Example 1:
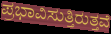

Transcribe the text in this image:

ಪ್ರಭಾವಿಸುತ್ತಿರುತ್ತವೆ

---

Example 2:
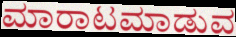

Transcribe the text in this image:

ಮಾರಾಟಮಾಡುವ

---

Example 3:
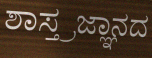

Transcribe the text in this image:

ಶಾಸ್ತ್ರಜ್ಞಾನದ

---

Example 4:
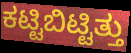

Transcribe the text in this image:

ಕಟ್ಟಿಬಿಟ್ಟಿತ್ತು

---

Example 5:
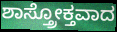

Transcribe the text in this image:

ಶಾಸ್ತ್ರೋಕ್ತವಾದ